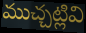
ముచ్చట్లివి